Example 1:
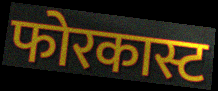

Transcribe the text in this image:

फोरकास्ट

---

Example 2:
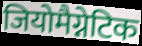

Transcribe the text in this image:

जियोमैग्नेटिक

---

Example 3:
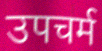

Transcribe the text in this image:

उपचर्म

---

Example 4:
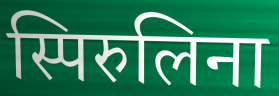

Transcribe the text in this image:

स्पिरुलिना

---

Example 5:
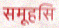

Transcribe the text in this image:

समूहसि